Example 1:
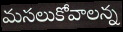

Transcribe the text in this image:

మసలుకోవాలన్న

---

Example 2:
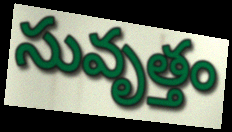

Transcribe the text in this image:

సువృత్తం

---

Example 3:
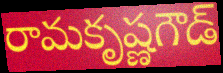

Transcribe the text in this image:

రామకృష్ణగౌడ్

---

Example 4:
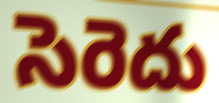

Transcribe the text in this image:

సెరెదు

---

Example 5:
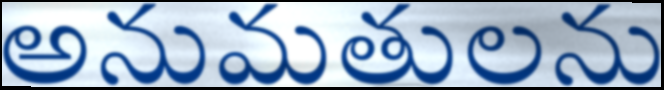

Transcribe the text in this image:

అనుమతులను